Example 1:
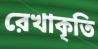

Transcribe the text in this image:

রেখাকৃতি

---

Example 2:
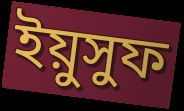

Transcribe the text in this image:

ইয়ুসুফ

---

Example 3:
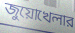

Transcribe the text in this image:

জুয়োখেলার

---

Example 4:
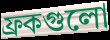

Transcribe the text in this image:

ফ্রকগুলো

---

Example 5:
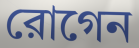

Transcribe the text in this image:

রোগেন